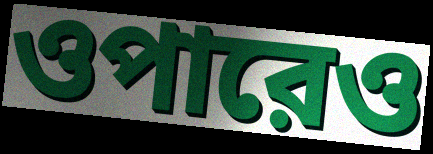
ওপারেও